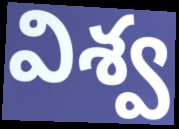
విశ్వ